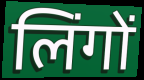
लिंगों